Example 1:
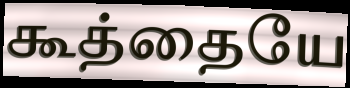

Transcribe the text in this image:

கூத்தையே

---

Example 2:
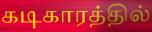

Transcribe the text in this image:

கடிகாரத்தில்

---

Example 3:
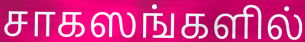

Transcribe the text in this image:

சாகஸங்களில்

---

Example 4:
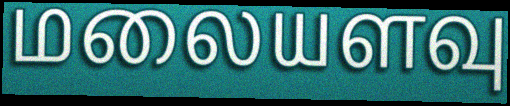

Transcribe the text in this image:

மலையளவு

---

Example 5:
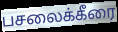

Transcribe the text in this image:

பசலைக்கீரை